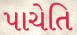
પાચેતિ